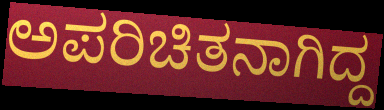
ಅಪರಿಚಿತನಾಗಿದ್ದ